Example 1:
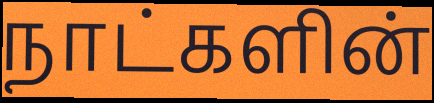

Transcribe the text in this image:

நாட்களின்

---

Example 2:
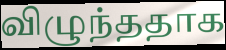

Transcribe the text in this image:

விழுந்ததாக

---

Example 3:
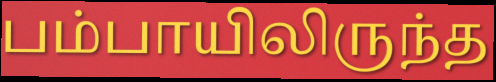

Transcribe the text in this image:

பம்பாயிலிருந்த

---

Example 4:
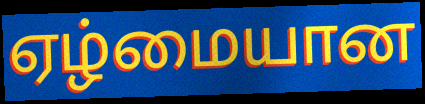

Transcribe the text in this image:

ஏழ்மையான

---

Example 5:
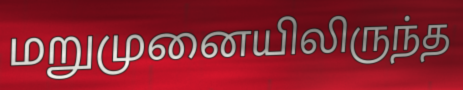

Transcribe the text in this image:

மறுமுனையிலிருந்த